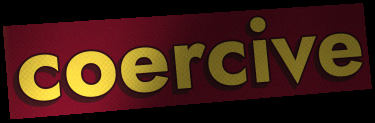
coercive